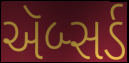
ઍબ્સર્ડ